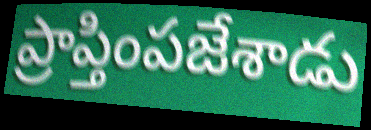
ప్రాప్తింపజేశాడు